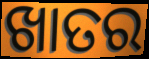
ଖାତର